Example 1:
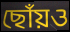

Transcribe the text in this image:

ছোঁয়ও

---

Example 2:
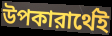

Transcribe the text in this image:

উপকারার্থেই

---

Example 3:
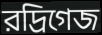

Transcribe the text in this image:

রদ্রিগেজ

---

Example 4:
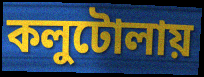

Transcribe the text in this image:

কলুটোলায়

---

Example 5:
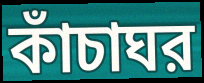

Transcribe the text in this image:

কাঁচাঘর